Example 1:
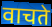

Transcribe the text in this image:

वाचते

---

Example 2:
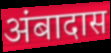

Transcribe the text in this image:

अंबादास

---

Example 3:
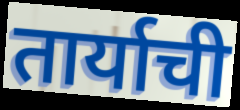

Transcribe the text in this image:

तार्याची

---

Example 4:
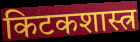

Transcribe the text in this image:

किटकशास्‍त्र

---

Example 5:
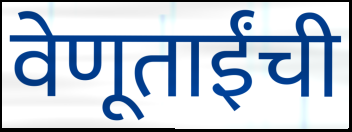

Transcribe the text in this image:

वेणूताईंची